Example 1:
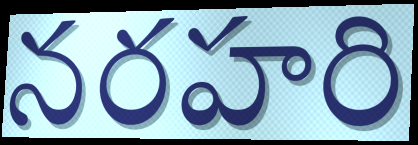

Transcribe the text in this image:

నరహరి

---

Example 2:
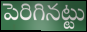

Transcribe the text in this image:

పెరిగినట్టు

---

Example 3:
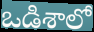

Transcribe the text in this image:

ఒడిశాలో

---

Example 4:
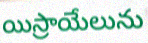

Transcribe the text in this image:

యిస్రాయేలును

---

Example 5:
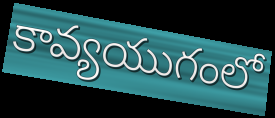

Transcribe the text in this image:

కావ్యయుగంలో